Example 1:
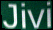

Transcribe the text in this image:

Jivi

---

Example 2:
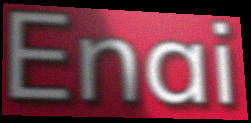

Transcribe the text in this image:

Enai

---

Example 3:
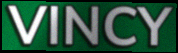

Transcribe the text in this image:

VINCY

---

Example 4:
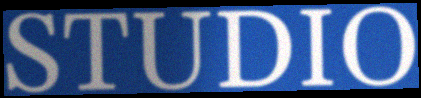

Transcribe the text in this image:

STUDIO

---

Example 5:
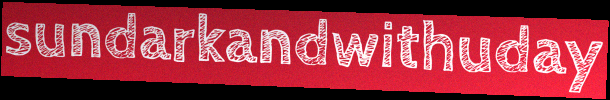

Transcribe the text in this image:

sundarkandwithuday